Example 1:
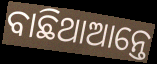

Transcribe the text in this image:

ବାଛିଥାଆନ୍ତେ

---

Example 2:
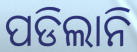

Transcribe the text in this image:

ପଡିଲାନି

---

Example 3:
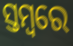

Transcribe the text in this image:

ସ୍ତମ୍ବରେ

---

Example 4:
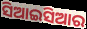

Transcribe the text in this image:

ସିଆଇସିଆର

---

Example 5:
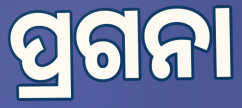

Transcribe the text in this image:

ପ୍ରଗନା